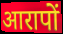
आरापों